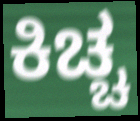
ಕಿಚ್ಚ